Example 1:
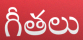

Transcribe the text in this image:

గీతలు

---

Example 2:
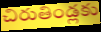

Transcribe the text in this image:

చిరుతిండ్లకు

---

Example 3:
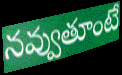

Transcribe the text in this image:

నవ్వుతూంటే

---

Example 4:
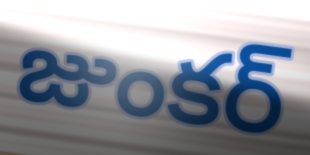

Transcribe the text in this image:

జుంకర్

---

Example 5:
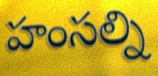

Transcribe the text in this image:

హంసల్ని